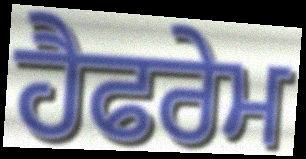
ਹੈਫਰੇਮ